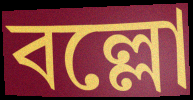
বল্লো